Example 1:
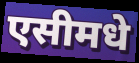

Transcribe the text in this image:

एसीमधे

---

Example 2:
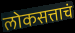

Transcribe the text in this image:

लोकसत्ताचं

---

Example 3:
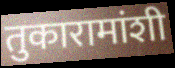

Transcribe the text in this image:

तुकारामांशी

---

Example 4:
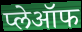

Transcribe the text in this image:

प्लेऑफ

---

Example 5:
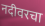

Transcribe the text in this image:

नदीवरचा